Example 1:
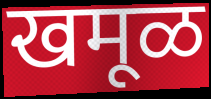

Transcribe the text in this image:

खमूळ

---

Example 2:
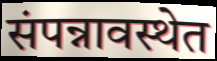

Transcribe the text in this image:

संपन्नावस्थेत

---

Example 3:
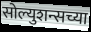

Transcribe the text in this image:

सोल्युशन्सच्या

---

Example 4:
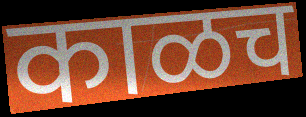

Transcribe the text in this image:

काळच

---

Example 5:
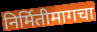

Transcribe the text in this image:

निर्मितीमागचा